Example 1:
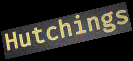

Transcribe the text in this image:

Hutchings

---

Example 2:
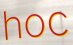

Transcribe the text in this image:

hoc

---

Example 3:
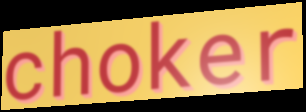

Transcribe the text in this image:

choker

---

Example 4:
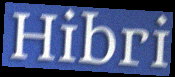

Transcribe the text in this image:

Hibri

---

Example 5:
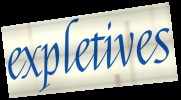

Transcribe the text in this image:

expletives